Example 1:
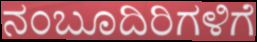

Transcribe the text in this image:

ನಂಬೂದಿರಿಗಳಿಗೆ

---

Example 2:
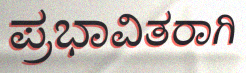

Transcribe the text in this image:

ಪ್ರಭಾವಿತರಾಗಿ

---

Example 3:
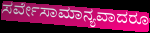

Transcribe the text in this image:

ಸರ್ವೇಸಾಮಾನ್ಯವಾದರೂ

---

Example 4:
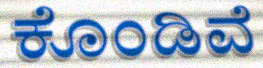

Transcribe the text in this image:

ಕೊಂಡಿವೆ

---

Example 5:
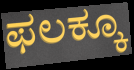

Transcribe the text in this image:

ಫಲಕ್ಕೂ